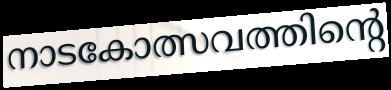
നാടകോത്സവത്തിന്റെ